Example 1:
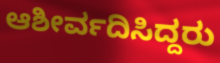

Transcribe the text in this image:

ಆಶೀರ್ವದಿಸಿದ್ದರು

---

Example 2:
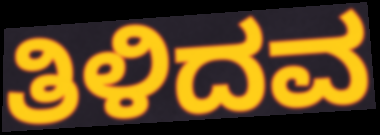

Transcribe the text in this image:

ತಿಳಿದವ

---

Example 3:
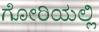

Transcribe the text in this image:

ಗೋರಿಯಲ್ಲಿ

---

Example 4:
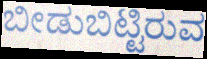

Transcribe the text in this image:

ಬೀಡುಬಿಟ್ಟಿರುವ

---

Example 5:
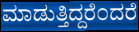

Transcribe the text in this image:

ಮಾಡುತ್ತಿದ್ದರೆಂದರೆ